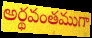
అర్థవంతముగా